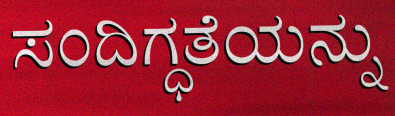
ಸಂದಿಗ್ಧತೆಯನ್ನು